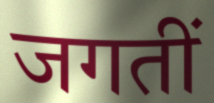
जगतीं